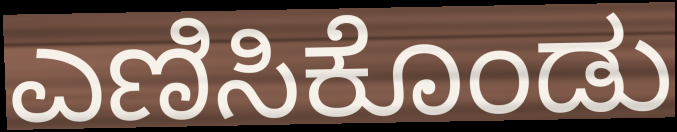
ಎಣಿಸಿಕೊಂಡು